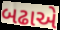
બઢાએ